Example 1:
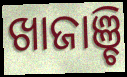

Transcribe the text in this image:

ଖାଜାଞ୍ଚି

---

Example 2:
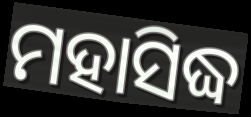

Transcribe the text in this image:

ମହାସିଦ୍ଧ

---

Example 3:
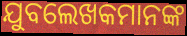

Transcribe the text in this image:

ଯୁବଲେଖକମାନଙ୍କ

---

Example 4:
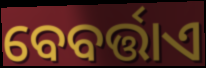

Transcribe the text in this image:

ବେବର୍ତ୍ତାଏ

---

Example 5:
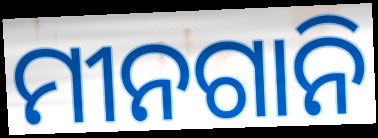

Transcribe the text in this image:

ମୀନଗାନି